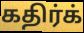
கதிர்க்